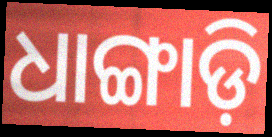
ଧାଙ୍ଗାଡ଼ି